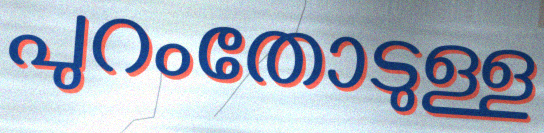
പുറംതോടുള്ള